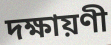
দক্ষায়ণী